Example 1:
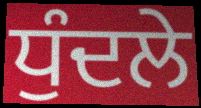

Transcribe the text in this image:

ਧੁੰਦਲੇ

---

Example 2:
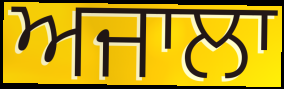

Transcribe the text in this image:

ਅਜਾਲਾ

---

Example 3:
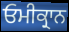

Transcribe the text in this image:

ਓਮੀਕ੍ਰਾਨ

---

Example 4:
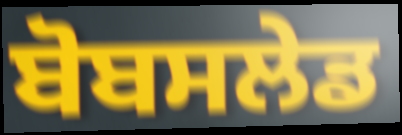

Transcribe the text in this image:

ਬੋਬਸਲੇਡ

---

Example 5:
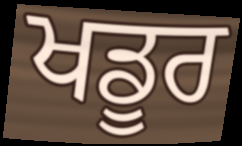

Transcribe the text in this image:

ਖਡੂਰ